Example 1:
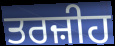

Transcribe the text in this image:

ਤਰਜ਼ੀਹ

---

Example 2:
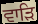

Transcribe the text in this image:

ਵਾੜਿ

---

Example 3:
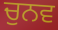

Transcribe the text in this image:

ਚੁਨਵ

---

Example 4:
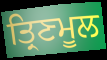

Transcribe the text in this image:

ਤ੍ਰਿਣਮੂਲ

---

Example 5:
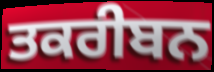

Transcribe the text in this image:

ਤਕਰੀਬਨ